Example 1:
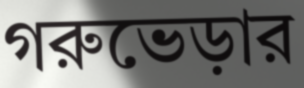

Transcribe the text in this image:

গরুভেড়ার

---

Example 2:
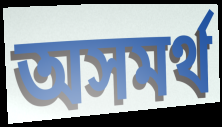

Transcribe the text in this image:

অসমর্থ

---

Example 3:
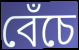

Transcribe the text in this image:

বেঁচে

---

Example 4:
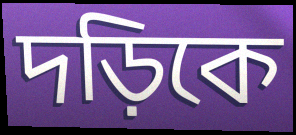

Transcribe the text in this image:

দড়িকে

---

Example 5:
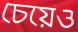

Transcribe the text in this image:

চেয়েও